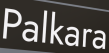
Palkara